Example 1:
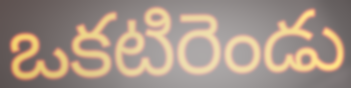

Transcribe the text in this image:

ఒకటిరెండు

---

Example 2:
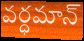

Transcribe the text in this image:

వర్ధమాన్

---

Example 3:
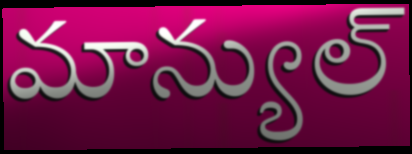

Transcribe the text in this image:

మాన్యుల్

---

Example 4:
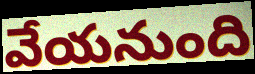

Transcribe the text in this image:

వేయనుంది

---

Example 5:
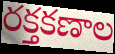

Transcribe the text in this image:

రక్తకణాల